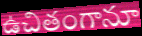
ఉచితంగానూ